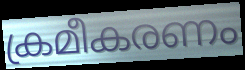
ക്രമീകരണം